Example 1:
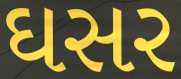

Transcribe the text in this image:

ઘસર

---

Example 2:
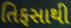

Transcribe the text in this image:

તિફસાથી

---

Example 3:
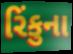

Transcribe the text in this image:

રિંકુના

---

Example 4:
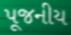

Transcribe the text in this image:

પૂજનીય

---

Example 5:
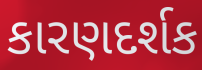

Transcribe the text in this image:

કારણદર્શક